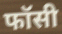
फॉसी